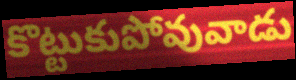
కొట్టుకుపోవువాడు